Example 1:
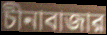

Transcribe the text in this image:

চীনাবাজার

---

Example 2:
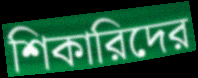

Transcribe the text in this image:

শিকারিদের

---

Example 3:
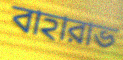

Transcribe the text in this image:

বাহারাভ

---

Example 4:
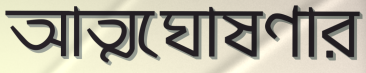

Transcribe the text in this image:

আত্মঘোষণার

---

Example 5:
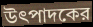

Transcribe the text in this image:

উৎপাদকের